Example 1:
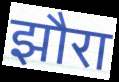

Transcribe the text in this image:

झौरा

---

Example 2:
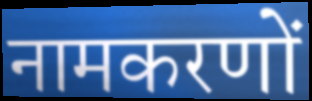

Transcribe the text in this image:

नामकरणों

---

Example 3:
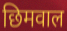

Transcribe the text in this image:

छिमवाल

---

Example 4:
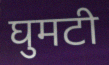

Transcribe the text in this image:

घुमटी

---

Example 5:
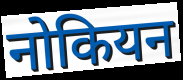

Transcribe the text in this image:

नोकियन